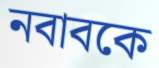
নবাবকে